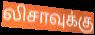
லிசாவுக்கு